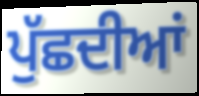
ਪੁੱਛਦੀਆਂ